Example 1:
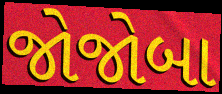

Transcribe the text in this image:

જોજોબા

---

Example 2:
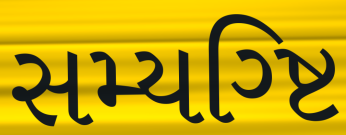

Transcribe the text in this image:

સમ્યગ્ષ્ટિ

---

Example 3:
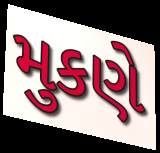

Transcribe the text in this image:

મુકણે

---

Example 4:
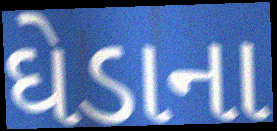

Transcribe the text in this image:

ઘેડાના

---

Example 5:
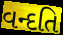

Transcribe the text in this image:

વન્દતિ